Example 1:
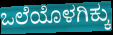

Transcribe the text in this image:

ಒಲೆಯೊಳಗಿಕ್ಕು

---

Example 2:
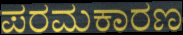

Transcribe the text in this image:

ಪರಮಕಾರಣ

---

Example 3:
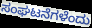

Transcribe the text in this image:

ಸಂಘಟನೆಗಳೆಂದು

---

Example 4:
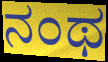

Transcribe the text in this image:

ನಂಥ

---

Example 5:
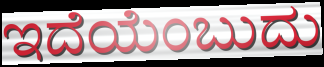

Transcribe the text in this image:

ಇದೆಯೆಂಬುದು